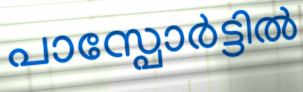
പാസ്പോർട്ടിൽ